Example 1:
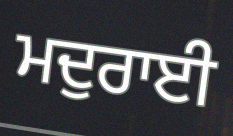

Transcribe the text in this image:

ਮਦੁਰਾਈ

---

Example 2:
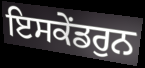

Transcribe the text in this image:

ਇਸਕੇਂਡਰੁਨ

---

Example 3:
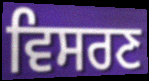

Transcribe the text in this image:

ਵਿਸਰਣ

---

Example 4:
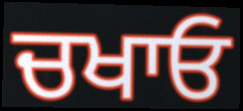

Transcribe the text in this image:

ਚਖਾਓ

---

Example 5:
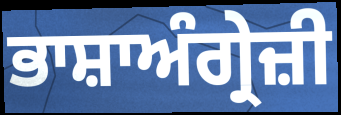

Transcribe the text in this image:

ਭਾਸ਼ਾਅੰਗ੍ਰੇਜ਼ੀ